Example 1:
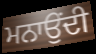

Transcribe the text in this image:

ਮਨਾਉਂਦੀ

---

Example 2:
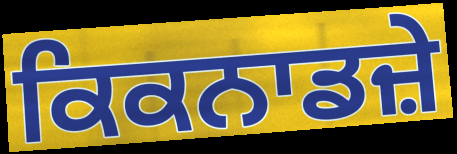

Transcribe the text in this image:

ਕਿਕਨਾਡਜ਼ੇ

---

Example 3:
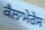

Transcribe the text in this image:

ਕੈਲਾਮੇਰੇਸ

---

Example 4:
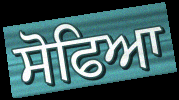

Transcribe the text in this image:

ਸੋਫਿਆ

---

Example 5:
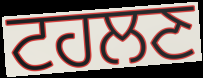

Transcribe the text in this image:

ਟਹਲਣ